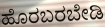
ಹೊರಬರಬೇಡಿ